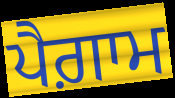
ਪੈਗ਼ਾਮ